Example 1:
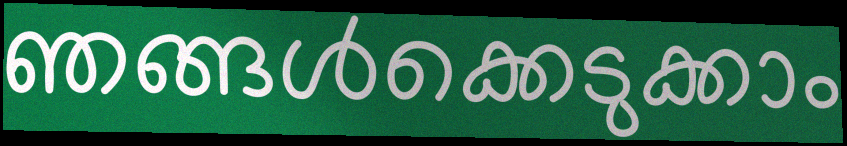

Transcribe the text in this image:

ഞങ്ങൾക്കെടുക്കാം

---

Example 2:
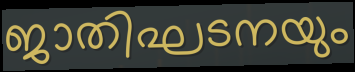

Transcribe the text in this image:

ജാതിഘടനയും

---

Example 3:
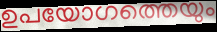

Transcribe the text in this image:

ഉപയോഗത്തെയും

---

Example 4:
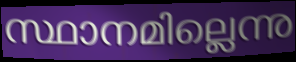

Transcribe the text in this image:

സ്ഥാനമില്ലെന്നു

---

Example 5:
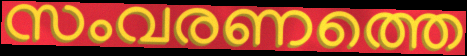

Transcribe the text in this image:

സംവരണത്തെ